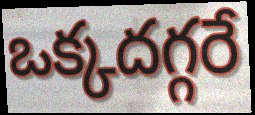
ఒక్కదగ్గరే